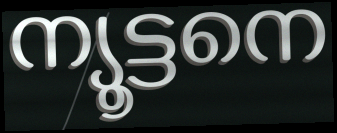
ന്യൂട്ടനെ